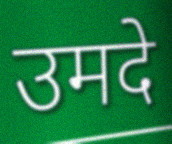
उमदे